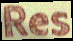
Res